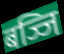
बज्जि